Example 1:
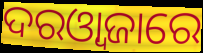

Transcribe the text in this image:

ଦରଓ୍ୱାଜାରେ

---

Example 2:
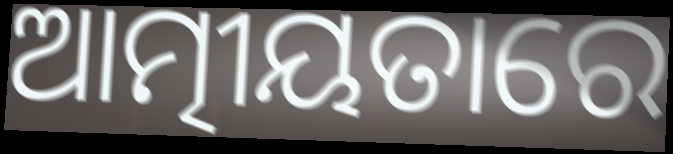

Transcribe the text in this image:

ଆତ୍ମୀୟତାରେ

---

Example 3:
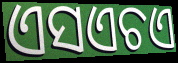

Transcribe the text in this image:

ଏସଏଚଏ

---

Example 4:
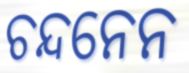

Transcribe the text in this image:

ଚନ୍ଦନେନ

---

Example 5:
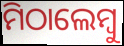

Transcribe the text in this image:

ମିଠାଲେମ୍ବୁ